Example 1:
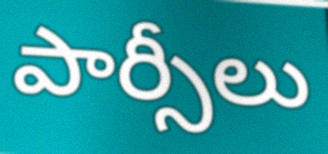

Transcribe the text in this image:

పార్సీలు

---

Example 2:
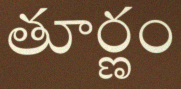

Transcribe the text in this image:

తూర్ణం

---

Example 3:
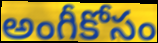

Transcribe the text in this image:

అంగీకోసం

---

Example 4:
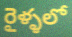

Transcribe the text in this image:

రైళ్ళలో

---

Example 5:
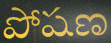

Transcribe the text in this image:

పోషణ